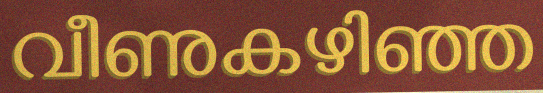
വീണുകഴിഞ്ഞ